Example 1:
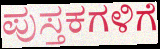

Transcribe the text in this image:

ಪುಸ್ತಕಗಳಿಗೆ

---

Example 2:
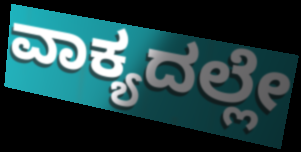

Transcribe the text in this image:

ವಾಕ್ಯದಲ್ಲೇ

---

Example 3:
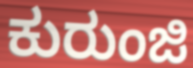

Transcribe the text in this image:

ಕುರುಂಜಿ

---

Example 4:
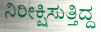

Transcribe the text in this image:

ನಿರೀಕ್ಷಿಸುತ್ತಿದ್ದ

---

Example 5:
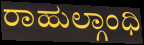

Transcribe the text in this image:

ರಾಹುಲ್ಗಾಂಧಿ